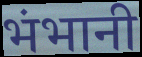
भंभानी